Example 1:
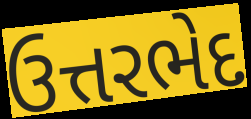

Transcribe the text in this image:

ઉત્તરભેદ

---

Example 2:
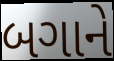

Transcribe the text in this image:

બગાને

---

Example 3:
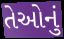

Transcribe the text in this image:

તેઓનું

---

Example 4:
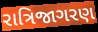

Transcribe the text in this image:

રાત્રિજાગરણ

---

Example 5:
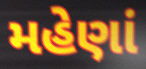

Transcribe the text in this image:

મહેણાં